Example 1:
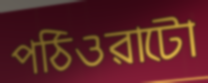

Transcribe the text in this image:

পঠিওৱাটো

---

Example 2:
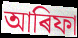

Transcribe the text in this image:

আৰিফা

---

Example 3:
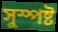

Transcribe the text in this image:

সুস্পষ্ট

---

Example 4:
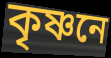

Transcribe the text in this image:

কৃষ্ণনে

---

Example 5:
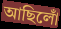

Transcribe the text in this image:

আছিলোঁ